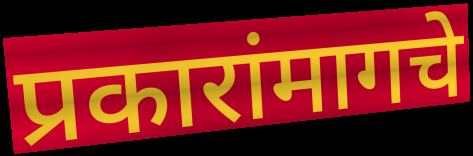
प्रकारांमागचे